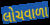
લોચવાળા